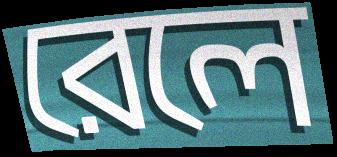
রেলে